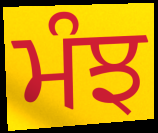
ਮੰਝ